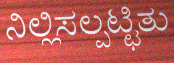
ನಿಲ್ಲಿಸಲ್ಪಟ್ಟಿತು